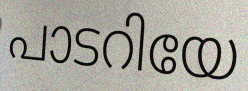
പാടറിയേ